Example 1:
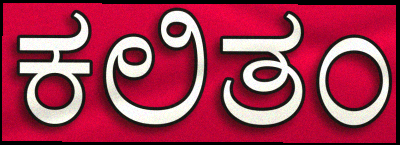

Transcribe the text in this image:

ಕಲಿತಂ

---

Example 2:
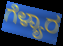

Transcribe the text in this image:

ಗೆಳ್ಯಾರ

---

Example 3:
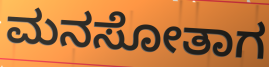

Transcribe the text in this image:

ಮನಸೋತಾಗ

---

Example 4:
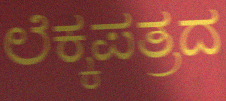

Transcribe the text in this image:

ಲೆಕ್ಕಪತ್ರದ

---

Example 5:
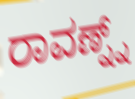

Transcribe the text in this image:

ರಾವಣ್ನ್ನ್